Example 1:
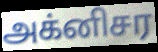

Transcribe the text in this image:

அக்னிசர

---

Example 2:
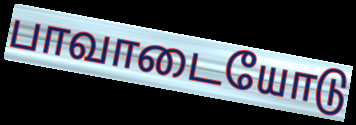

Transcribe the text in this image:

பாவாடையோடு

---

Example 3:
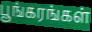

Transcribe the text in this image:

பூங்கரங்கள்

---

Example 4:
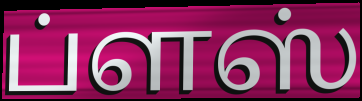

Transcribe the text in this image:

ப்ளஸ்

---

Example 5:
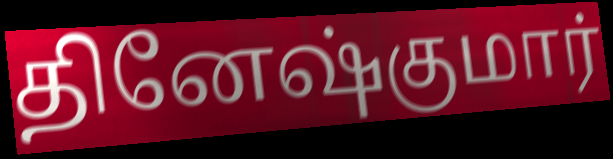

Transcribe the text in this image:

தினேஷ்குமார்